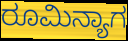
ರೂಮಿನ್ಯಾಗ